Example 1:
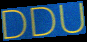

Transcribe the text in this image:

DDU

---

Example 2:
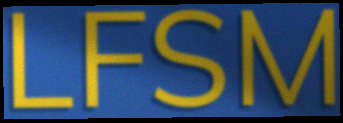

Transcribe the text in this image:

LFSM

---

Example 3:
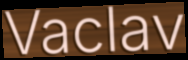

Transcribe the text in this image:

Vaclav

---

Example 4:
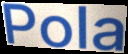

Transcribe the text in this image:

Pola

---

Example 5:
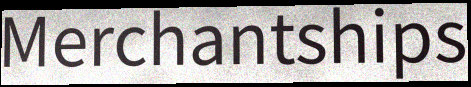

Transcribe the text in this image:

Merchantships